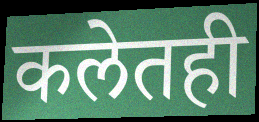
कलेतही